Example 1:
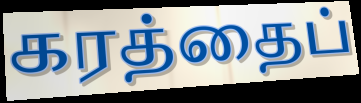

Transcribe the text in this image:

கரத்தைப்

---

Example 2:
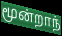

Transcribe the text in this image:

மூன்றாந்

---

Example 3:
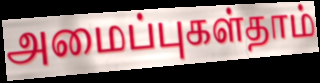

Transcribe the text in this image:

அமைப்புகள்தாம்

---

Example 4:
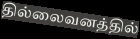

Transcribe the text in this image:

தில்லைவனத்தில்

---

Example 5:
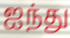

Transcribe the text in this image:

ஐந்து